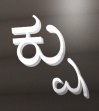
ಕ್ಷು